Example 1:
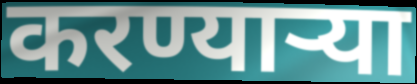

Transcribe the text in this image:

करण्यार्‍या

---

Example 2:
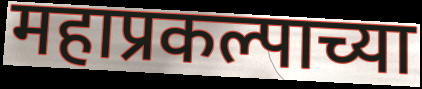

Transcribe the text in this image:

महाप्रकल्पाच्या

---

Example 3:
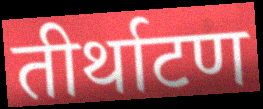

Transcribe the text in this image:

तीर्थाटण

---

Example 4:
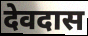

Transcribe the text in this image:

देवदास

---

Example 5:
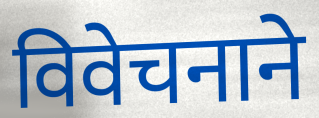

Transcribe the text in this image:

विवेचनाने